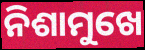
ନିଶାମୁଖେ